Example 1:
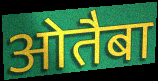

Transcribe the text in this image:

ओतैबा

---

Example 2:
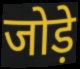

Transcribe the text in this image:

जोड़े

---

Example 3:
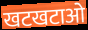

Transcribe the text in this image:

खटखटाओ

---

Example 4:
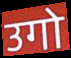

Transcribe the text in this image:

उगो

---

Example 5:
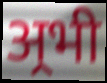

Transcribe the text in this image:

अ्रभी